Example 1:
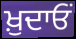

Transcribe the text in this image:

ਖ਼ੁਦਾਓਂ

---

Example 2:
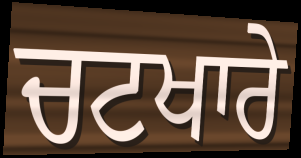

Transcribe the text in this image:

ਚਟਖਾਰੇ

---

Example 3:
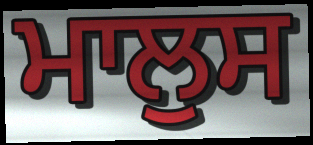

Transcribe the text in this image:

ਮਾਲੁਸ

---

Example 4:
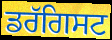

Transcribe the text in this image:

ਡਰੱਗਿਸਟ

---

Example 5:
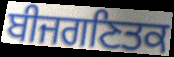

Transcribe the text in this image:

ਬੀਜਗਣਿਤਕ